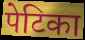
पेटिका